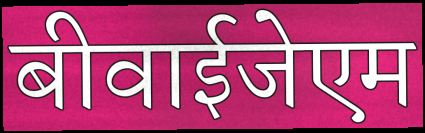
बीवाईजेएम